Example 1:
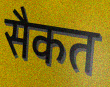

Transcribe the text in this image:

सैकत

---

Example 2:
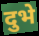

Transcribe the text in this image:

दुभे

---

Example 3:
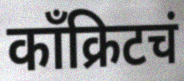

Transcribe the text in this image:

काँक्रिटचं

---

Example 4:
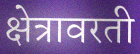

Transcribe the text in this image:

क्षेत्रावरती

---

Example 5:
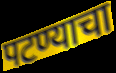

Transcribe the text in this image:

पटण्याचा